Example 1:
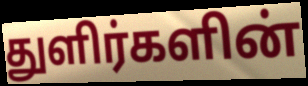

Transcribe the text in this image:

துளிர்களின்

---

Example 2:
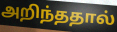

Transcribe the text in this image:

அறிந்ததால்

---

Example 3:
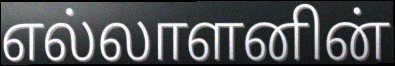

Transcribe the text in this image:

எல்லாளனின்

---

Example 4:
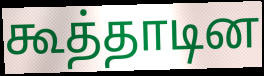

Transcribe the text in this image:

கூத்தாடின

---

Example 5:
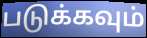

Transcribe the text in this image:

படுக்கவும்